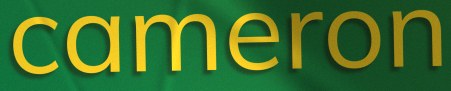
cameron